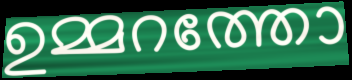
ഉമ്മറത്തോ